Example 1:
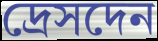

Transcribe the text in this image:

দ্রেসদেন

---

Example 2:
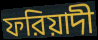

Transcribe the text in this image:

ফরিয়াদী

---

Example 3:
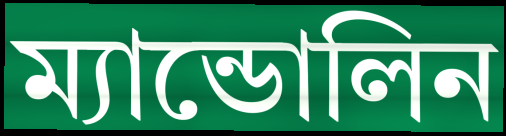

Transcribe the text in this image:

ম্যান্ডোলিন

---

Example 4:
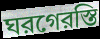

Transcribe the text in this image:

ঘরগেরস্তি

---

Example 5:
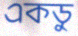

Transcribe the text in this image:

একডু